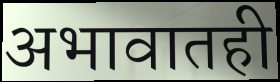
अभावातही